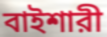
বাইশারী